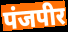
पंजपीर